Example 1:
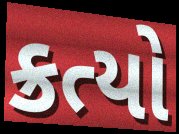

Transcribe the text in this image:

ક્રત્યો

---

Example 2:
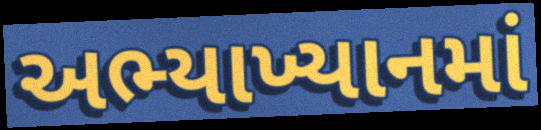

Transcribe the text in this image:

અભ્યાખ્યાનમાં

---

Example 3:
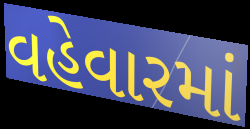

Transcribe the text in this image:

વહેવારમાં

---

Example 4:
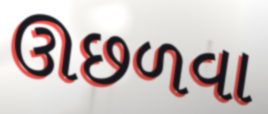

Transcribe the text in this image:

ઊછળવા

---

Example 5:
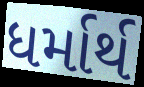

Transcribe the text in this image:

ધર્માર્થ